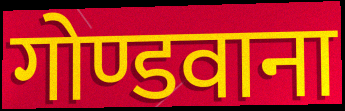
गोण्डवाना